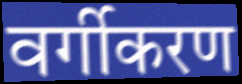
वर्गीकरण